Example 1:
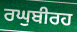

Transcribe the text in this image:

ਰਘੁਬੀਰਹ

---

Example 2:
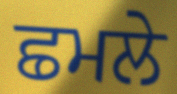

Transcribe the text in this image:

ਛਮਲੇ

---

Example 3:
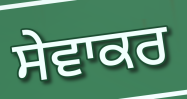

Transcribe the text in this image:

ਸੇਵਾਕਰ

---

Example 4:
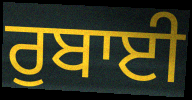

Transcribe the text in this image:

ਰੁਬਾਈ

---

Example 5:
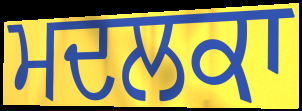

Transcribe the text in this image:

ਮਦਲਕਾ